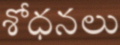
శోధనలు